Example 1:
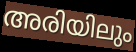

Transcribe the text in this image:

അരിയിലും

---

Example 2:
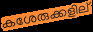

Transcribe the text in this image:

കശേരുക്കളില്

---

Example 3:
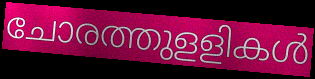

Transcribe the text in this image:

ചോരത്തുളളികൾ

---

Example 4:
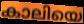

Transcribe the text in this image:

കാലിയെ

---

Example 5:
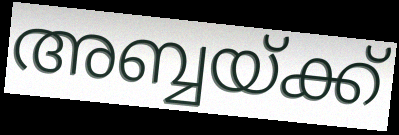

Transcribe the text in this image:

അബ്ബയ്ക്ക്